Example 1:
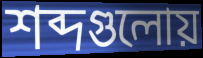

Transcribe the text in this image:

শব্দগুলোয়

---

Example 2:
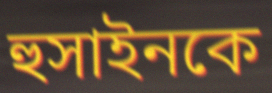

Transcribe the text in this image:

হুসাইনকে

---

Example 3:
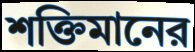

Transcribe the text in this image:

শক্তিমানের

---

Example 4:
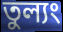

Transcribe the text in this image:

তুল্যং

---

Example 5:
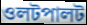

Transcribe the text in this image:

ওলটপালট